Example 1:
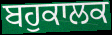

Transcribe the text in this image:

ਬਹੁਕਾਲਕ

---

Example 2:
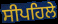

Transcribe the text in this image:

ਸੀਪਹਿਲੇ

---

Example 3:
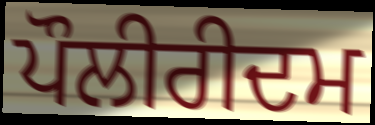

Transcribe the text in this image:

ਪੌਲੀਰੀਦਮ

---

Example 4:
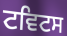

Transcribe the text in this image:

ਟਵਿਟਸ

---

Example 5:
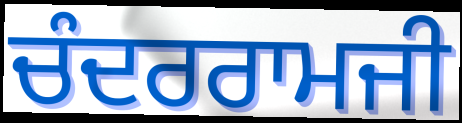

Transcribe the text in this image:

ਚੰਦਰਰਾਮਜੀ